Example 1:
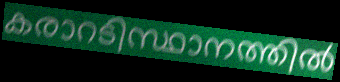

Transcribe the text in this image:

കരാറടിസ്ഥാനത്തിൽ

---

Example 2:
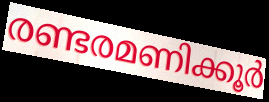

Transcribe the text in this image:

രണ്ടരമണിക്കൂർ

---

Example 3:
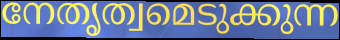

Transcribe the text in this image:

നേതൃത്വമെടുക്കുന്ന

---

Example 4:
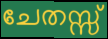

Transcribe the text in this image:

ചേതസ്സ്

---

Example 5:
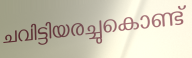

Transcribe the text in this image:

ചവിട്ടിയരച്ചുകൊണ്ട്